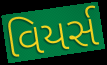
વિયર્સ